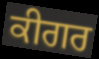
ਕੀਗਰ